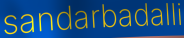
sandarbadalli